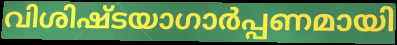
വിശിഷ്ടയാഗാർപ്പണമായി